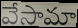
వేసామా